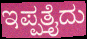
ಇಪ್ಪತ್ತೈದು